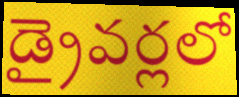
డ్రైవర్లలో